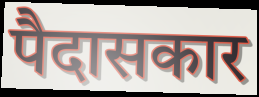
पैदासकार